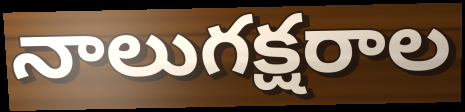
నాలుగక్షరాల